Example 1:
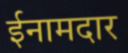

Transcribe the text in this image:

ईनामदार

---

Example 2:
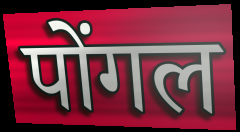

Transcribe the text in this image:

पोंगल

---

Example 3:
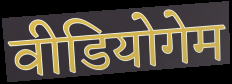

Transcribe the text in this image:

वीडियोगेम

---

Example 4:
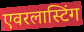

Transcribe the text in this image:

एवरलास्टिंग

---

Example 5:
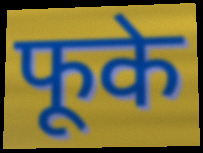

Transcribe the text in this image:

फूके